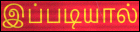
இப்படியால்